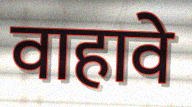
वाहावे